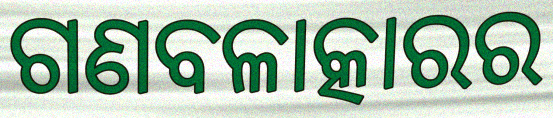
ଗଣବଳାତ୍କାରର